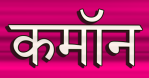
कमॉन